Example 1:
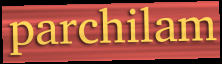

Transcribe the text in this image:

parchilam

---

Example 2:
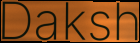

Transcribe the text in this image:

Daksh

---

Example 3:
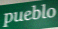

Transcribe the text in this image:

pueblo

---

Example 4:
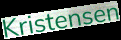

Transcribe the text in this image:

Kristensen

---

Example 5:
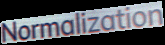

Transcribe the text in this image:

Normalization